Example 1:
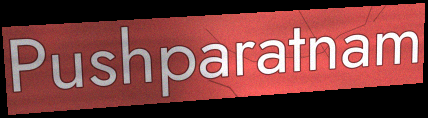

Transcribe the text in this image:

Pushparatnam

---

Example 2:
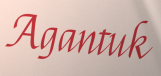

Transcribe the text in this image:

Agantuk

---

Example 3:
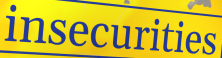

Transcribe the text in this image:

insecurities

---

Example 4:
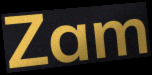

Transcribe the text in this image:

Zam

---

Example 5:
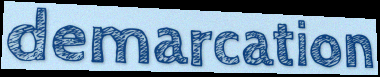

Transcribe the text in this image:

demarcation